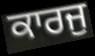
ਕਾਰਜੁ